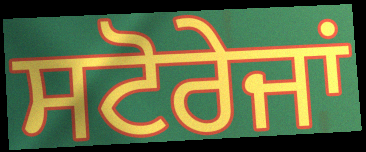
ਸਟੋਰੇਜਾਂ